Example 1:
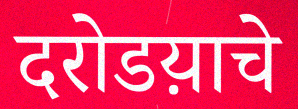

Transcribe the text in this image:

दरोडय़ाचे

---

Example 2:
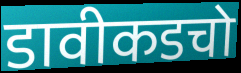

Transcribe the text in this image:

डावीकडचो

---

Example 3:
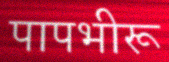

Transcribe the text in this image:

पापभीरू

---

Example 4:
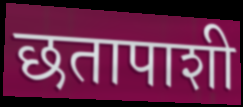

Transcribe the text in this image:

छतापाशी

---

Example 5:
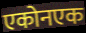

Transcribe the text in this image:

एकोनएक